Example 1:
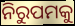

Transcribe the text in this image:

ନିରୁପମକୁ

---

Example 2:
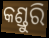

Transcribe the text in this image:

କଣ୍ଡୁରି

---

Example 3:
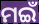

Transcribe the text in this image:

ମଇଁ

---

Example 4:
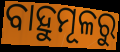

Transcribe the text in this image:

ବାହୁମୂଳରୁ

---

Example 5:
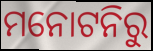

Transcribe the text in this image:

ମନୋଟନିରୁ